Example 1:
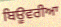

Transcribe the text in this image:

ਬਿਊਵਰੀਆ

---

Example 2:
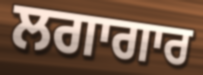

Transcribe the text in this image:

ਲਗਾਗਾਰ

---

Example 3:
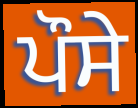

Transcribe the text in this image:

ਪੌਸੇ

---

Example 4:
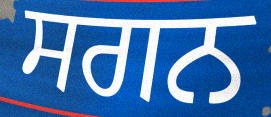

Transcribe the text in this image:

ਸਗਨ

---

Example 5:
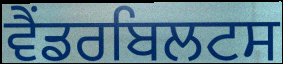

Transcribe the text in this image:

ਵੈਂਡਰਬਿਲਟਸ